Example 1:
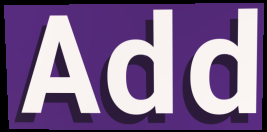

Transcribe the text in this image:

Add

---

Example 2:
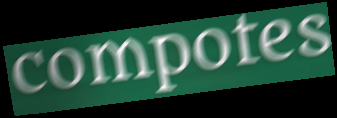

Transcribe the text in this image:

compotes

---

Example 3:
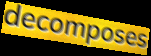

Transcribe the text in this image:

decomposes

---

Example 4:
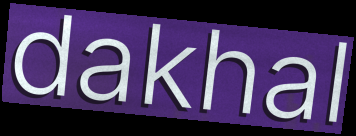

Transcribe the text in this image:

dakhal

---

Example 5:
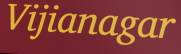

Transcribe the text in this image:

Vijianagar